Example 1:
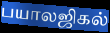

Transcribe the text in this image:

பயாலஜிகல்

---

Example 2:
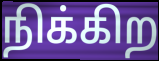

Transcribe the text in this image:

நிக்கிற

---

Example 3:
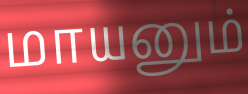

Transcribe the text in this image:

மாயனும்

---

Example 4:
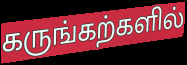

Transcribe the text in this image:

கருங்கற்களில்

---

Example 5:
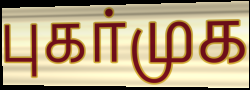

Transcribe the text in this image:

புகர்முக